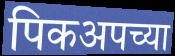
पिकअपच्या